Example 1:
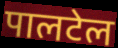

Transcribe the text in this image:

पालटेल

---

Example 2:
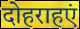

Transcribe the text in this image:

दोहराहएं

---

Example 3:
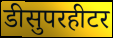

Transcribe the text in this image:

डीसुपरहीटर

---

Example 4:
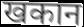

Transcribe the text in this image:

खकान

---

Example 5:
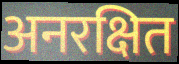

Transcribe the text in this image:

अनरक्षित